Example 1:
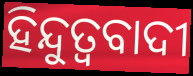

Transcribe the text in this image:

ହିନ୍ଦୁତ୍ବବାଦୀ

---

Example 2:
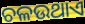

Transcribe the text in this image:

ଚଳଉଥାଏ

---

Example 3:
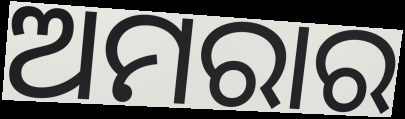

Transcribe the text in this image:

ଅମରାର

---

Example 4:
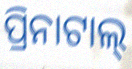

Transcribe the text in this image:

ପ୍ରିନାଟାଲ୍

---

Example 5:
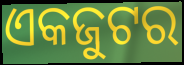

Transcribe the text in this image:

ଏକଜୁଟର